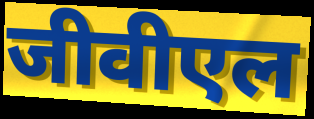
जीवीएल